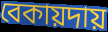
বেকায়দায়